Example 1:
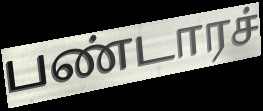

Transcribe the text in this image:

பண்டாரச்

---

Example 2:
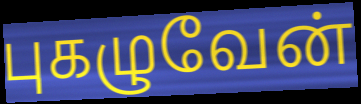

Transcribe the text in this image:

புகழுவேன்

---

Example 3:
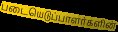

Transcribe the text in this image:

படையெடுப்பாளர்களின்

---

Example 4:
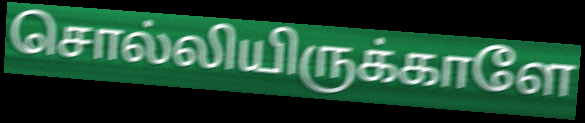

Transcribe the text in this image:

சொல்லியிருக்காளே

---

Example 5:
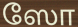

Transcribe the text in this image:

ஸோ